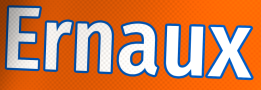
Ernaux